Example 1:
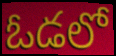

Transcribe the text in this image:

ఓడలో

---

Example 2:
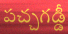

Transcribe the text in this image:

పచ్చగడ్డీ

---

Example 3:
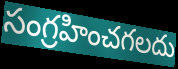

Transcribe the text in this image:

సంగ్రహించగలదు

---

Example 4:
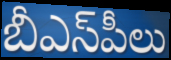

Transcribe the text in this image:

బీఎస్‌పీలు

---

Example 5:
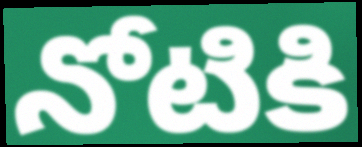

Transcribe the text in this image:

నోటికి